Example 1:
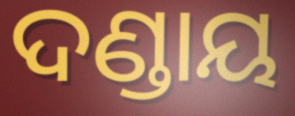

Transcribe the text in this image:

ଦଣ୍ଡାୟ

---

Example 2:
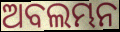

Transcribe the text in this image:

ଅବଲମ୍ଭନ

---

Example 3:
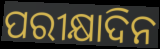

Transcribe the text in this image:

ପରୀକ୍ଷାଦିନ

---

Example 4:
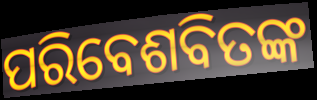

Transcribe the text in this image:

ପରିବେଶବିତଙ୍କ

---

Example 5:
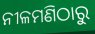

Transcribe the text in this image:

ନୀଳମଣିଠାରୁ